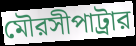
মৌরসীপাট্রার